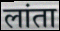
लांता